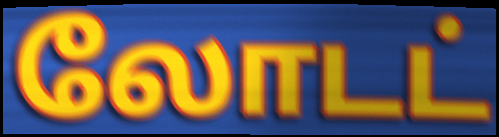
லோடட்